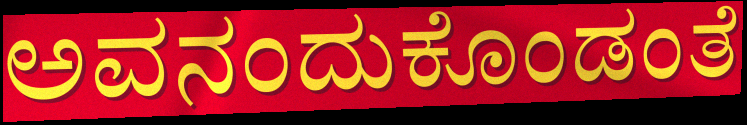
ಅವನಂದುಕೊಂಡಂತೆ